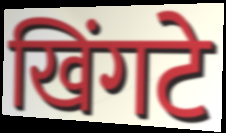
खिंगटे